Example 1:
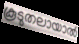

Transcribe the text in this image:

കൂടുതലായാൽ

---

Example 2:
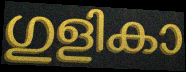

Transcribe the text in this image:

ഗുളികാ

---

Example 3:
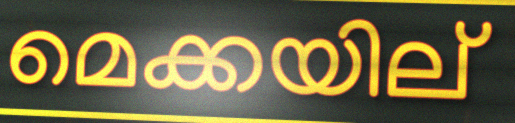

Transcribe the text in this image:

മെക്കയില്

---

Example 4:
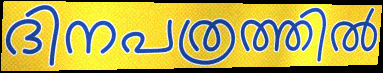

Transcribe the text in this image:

ദിനപത്രത്തിൽ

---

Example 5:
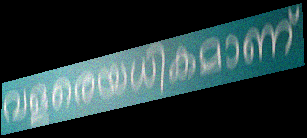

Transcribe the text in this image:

വളരെയധികമാണ്